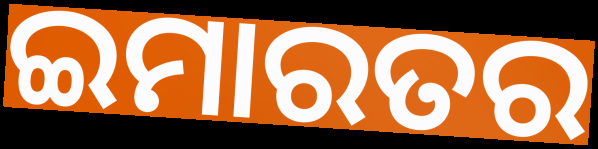
ଇମାରତର